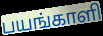
பயங்காளி